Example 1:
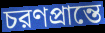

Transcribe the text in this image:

চরণপ্রান্তে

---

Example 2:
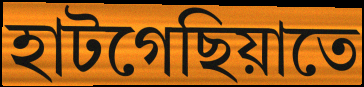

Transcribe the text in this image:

হাটগেছিয়াতে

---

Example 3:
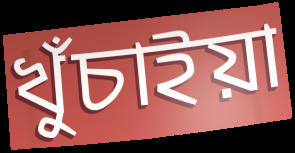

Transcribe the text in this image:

খুঁচাইয়া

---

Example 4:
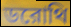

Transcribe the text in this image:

ডরোথি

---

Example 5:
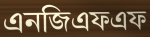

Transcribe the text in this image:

এনজিএফএফ